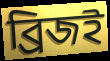
ব্রিজই